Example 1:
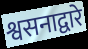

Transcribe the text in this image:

श्वसनाद्वारे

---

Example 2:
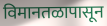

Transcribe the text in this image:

विमानतळापासून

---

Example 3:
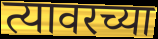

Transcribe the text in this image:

त्यावरच्या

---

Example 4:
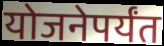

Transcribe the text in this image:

योजनेपर्यंत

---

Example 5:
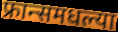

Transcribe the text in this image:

फ्रान्समधल्या